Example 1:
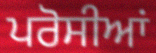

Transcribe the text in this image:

ਪਰੋਸੀਆਂ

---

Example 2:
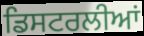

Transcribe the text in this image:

ਡਿਸਟਰਲੀਆਂ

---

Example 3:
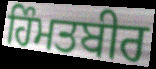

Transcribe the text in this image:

ਹਿੰਮਤਬੀਰ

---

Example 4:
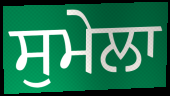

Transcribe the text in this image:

ਸੁਮੇਲਾ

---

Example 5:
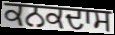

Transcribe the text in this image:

ਕਨਕਦਾਸ